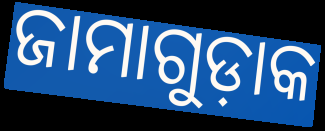
ଜାମାଗୁଡ଼ାକ